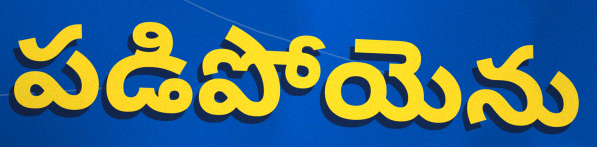
పడిపోయెను